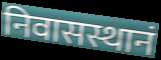
निवासस्थानं